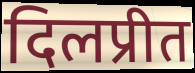
दिलप्रीत